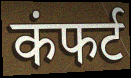
कंफर्ट